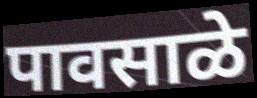
पावसाळे